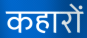
कहारों